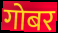
गोबर